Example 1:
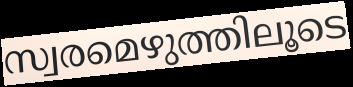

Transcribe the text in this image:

സ്വരമെഴുത്തിലൂടെ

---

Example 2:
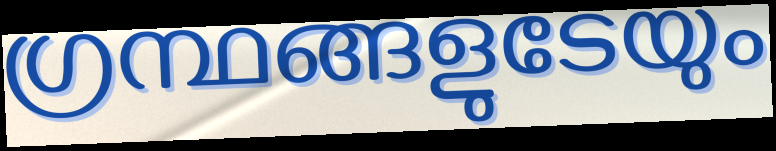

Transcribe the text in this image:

ഗ്രന്ഥങ്ങളുടേയും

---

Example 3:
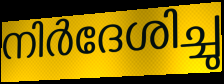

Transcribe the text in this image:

നിർദേശിച്ചു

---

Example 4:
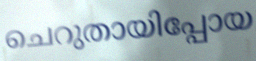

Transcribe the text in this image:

ചെറുതായിപ്പോയ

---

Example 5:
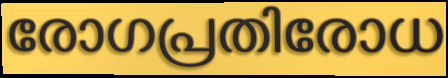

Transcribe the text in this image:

രോഗപ്രതിരോധ